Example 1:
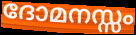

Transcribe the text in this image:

ദോമനസ്സം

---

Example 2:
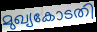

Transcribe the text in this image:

മുഖ്യകോടതി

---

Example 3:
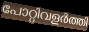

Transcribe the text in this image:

പോറ്റിവളർത്തി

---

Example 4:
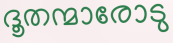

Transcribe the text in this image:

ദൂതന്മാരോടു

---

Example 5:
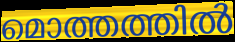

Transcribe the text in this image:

മൊത്തത്തിൽ